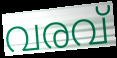
വരവ്